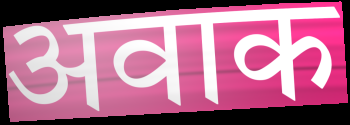
अवाक